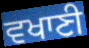
ਵਖਾਣੀ